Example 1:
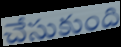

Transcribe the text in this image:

చేసుకుంది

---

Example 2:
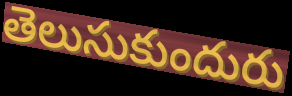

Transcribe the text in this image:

తెలుసుకుందురు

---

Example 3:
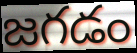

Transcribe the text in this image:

జగడం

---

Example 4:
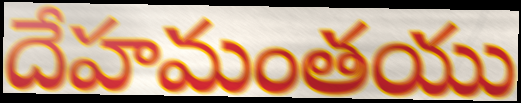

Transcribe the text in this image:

దేహమంతయు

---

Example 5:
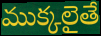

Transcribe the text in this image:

ముక్కలైతే